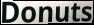
Donuts